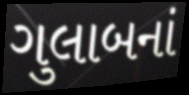
ગુલાબનાં